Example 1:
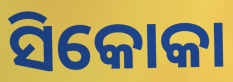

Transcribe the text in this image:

ସିକୋକା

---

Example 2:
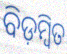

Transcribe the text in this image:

ବିଡ଼ମ୍ଵିତ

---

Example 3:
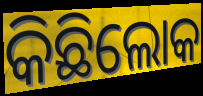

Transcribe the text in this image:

କିଛିଲୋକ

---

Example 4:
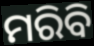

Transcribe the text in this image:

ମରିବି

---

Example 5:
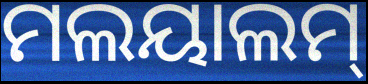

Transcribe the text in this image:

ମଲୟାଲମ୍